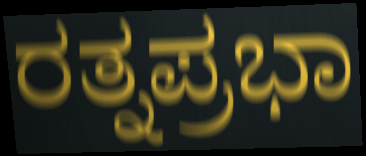
ರತ್ನಪ್ರಭಾ